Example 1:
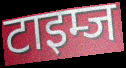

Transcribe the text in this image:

टाइम्ज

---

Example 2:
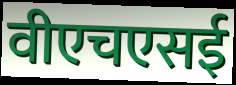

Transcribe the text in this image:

वीएचएसई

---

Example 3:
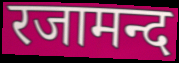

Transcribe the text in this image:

रजामन्द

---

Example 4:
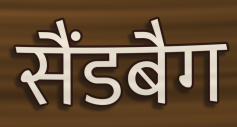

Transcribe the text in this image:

सैंडबैग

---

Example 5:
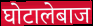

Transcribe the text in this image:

घोटालेबाज